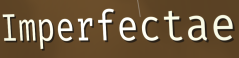
Imperfectae